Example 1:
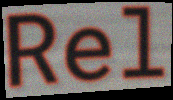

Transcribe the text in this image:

Rel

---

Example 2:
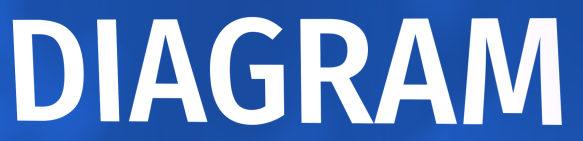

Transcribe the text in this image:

DIAGRAM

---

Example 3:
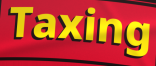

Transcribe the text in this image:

Taxing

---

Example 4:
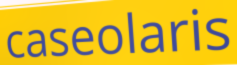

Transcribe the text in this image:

caseolaris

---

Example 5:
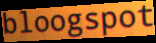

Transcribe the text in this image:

bloogspot